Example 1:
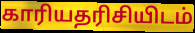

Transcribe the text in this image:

காரியதரிசியிடம்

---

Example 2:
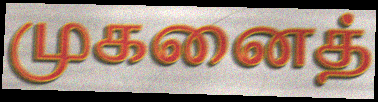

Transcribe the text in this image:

முகனைத்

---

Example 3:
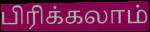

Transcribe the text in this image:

பிரிக்கலாம்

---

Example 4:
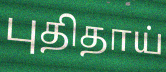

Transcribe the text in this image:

புதிதாய்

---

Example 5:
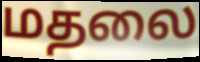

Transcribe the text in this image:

மதலை